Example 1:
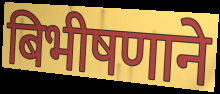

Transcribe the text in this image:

बिभीषणाने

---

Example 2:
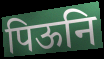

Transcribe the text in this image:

पिऊनि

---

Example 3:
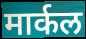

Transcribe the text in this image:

मार्कल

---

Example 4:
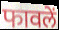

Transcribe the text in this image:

फावलें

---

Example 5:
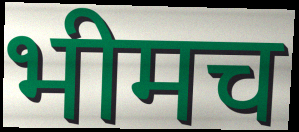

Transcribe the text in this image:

भीमच